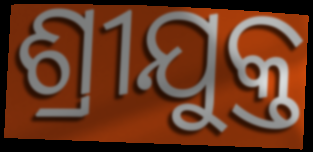
ଶ୍ରୀଯୁକ୍ତ